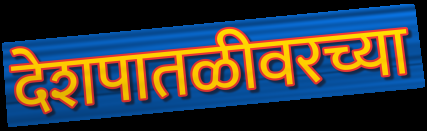
देशपातळीवरच्या